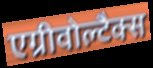
एग्रीवोल्टैक्स